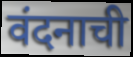
वंदनाची